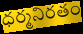
ధర్మనిరతం